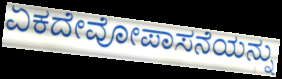
ಏಕದೇವೋಪಾಸನೆಯನ್ನು